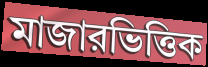
মাজারভিত্তিক